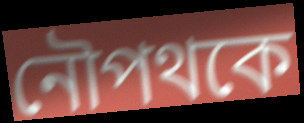
নৌপথকে